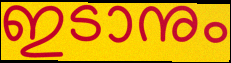
ഇടാനും